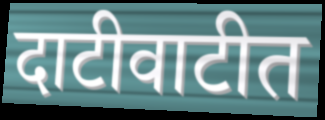
दाटीवाटीत